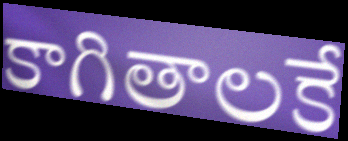
కాగితాలకే